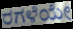
ರಗಳೆಯೇ